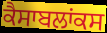
ਕੈਸਾਬਲਾਂਕਸ